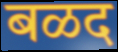
बळद